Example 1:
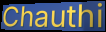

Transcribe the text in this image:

Chauthi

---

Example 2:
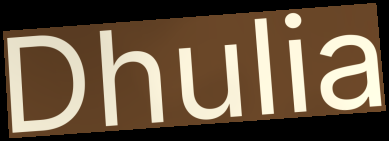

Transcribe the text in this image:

Dhulia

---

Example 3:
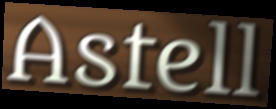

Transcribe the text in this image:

Astell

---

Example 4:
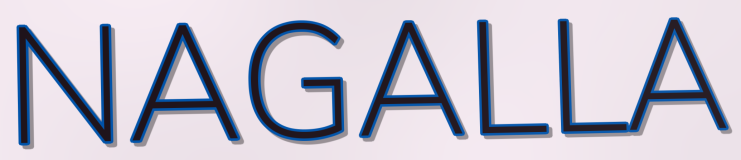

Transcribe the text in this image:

NAGALLA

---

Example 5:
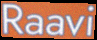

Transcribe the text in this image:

Raavi